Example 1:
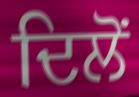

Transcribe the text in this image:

ਦਿਲੋਂ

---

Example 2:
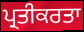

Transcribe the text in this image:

ਪ੍ਰਤੀਕਰਤਾ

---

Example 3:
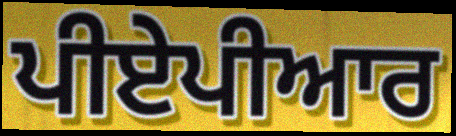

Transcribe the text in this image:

ਪੀਏਪੀਆਰ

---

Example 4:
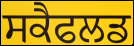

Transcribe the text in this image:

ਸਕੈਫਲਡ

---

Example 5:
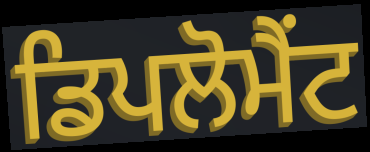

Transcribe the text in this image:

ਡਿਪਲੋਮੈਂਟ